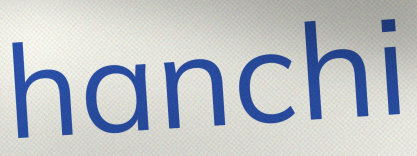
hanchi